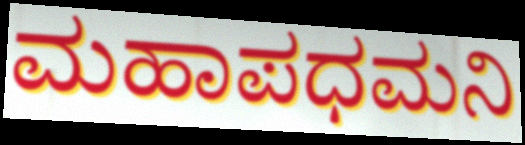
ಮಹಾಪಧಮನಿ